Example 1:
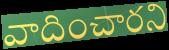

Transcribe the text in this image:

వాదించారని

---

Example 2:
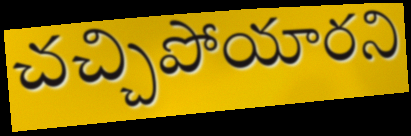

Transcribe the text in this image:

చచ్చిపోయారని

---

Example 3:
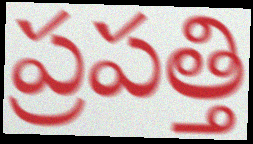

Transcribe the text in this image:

ప్రపత్తి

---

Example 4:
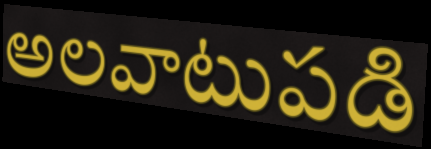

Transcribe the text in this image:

అలవాటుపడి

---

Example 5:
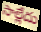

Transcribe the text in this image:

సాల్లేదు